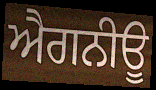
ਐਗਨੀਊ